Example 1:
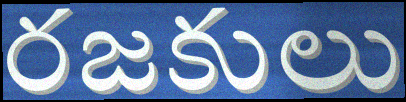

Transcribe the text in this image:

రజకులు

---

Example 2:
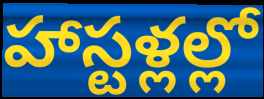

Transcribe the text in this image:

హాస్టళ్లల్లో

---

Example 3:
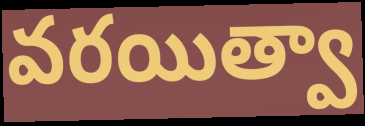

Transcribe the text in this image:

వరయిత్వా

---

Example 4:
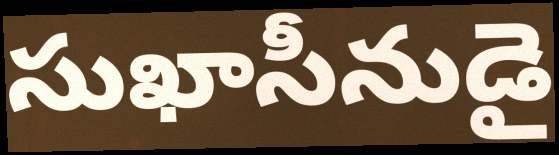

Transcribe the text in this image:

సుఖాసీనుడై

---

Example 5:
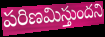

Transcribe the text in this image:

పరిణమిస్తుందని